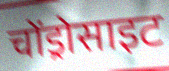
चोंड्रोसाइट